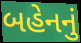
બહેનનું